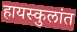
हायस्कुलांत